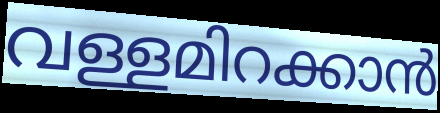
വള്ളമിറക്കാൻ